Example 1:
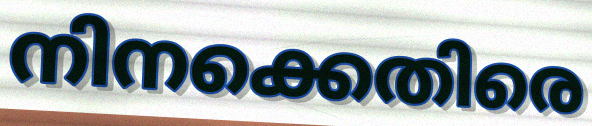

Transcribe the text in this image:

നിനക്കെതിരെ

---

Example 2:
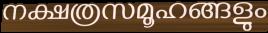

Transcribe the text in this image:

നക്ഷത്രസമൂഹങ്ങളും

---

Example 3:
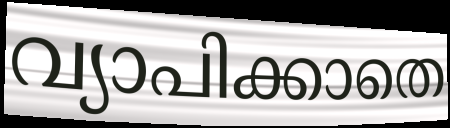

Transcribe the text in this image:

വ്യാപിക്കാതെ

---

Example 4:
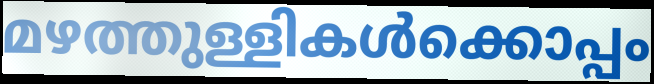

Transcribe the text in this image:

മഴത്തുള്ളികൾക്കൊപ്പം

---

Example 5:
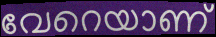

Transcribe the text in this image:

വേറെയാണ്